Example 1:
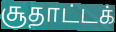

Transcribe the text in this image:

சூதாட்டக்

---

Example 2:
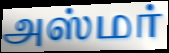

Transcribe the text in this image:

அஸ்மர்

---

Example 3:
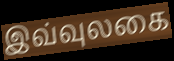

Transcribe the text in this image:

இவ்வுலகை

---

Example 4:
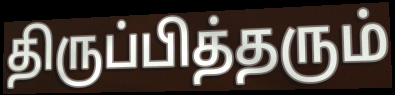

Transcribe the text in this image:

திருப்பித்தரும்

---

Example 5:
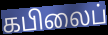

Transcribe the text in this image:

கபிலைப்